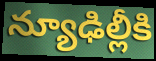
న్యూఢిల్లీకి